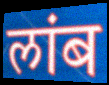
लांब